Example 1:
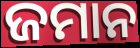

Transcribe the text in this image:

ଜମାନ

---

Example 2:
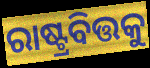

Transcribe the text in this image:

ରାଷ୍ଟ୍ରବିତ୍ତକୁ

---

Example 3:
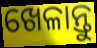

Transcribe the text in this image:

ଖେଳାନ୍ତୁ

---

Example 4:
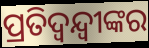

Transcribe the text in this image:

ପ୍ରତିଦ୍ୱନ୍ଦ୍ୱୀଙ୍କର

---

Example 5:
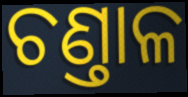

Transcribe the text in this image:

ଚଣ୍ତାଳ